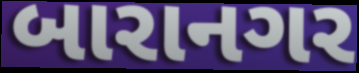
બારાનગર